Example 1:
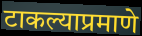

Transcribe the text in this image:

टाकल्याप्रमाणे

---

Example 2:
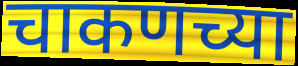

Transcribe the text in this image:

चाकणच्या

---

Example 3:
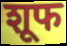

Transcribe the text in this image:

शूफ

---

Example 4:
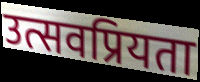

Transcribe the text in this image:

उत्सवप्रियता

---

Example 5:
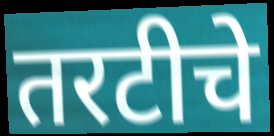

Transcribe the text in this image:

तरटीचे